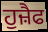
ਹੁਜ਼ੈਫ